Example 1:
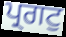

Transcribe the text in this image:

ਪ੍ਰਗਟੁ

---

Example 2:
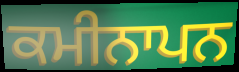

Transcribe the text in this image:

ਕਮੀਨਾਪਨ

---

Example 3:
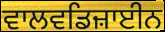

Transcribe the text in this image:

ਵਾਲਵਡਿਜ਼ਾਈਨ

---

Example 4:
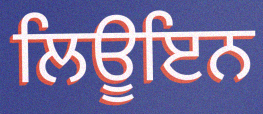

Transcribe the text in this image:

ਲਿਊਇਨ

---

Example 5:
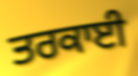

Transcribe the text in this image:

ਤਰਕਾਈ